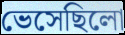
ভেসেছিলো